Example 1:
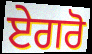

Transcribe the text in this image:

ਏਗਰੋ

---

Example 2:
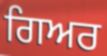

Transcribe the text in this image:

ਗਿਅਰ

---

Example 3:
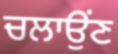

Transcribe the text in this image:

ਚਲਾਉਂਣ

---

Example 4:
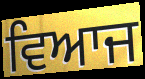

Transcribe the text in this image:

ਵਿਆਜ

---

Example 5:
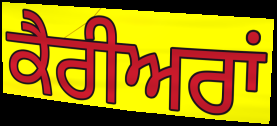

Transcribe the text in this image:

ਕੈਰੀਅਰਾਂ